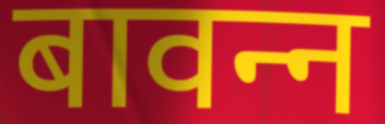
बावन्न